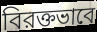
বিরক্তভাবে